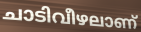
ചാടിവീഴലാണ്